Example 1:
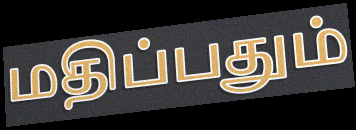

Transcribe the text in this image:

மதிப்பதும்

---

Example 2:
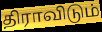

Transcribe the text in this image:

திராவிடும்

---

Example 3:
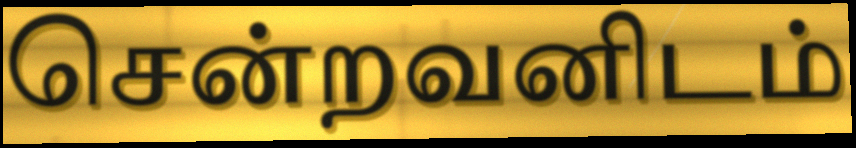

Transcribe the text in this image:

சென்றவனிடம்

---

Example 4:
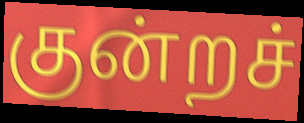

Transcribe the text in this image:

குன்றச்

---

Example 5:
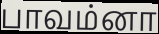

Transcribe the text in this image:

பாவம்னா